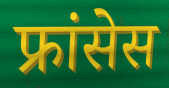
फ्रांसेस